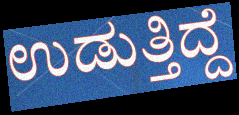
ಉಡುತ್ತಿದ್ದೆ